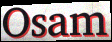
Osam